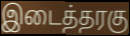
இடைத்தரகு